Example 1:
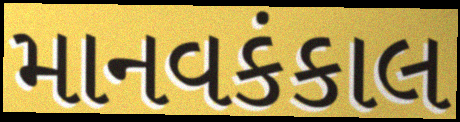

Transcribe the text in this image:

માનવકંકાલ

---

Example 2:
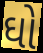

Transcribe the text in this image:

ઘો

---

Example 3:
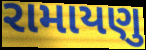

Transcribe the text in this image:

રામાયણુ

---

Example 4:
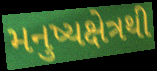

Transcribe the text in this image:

મનુષ્યક્ષેત્રથી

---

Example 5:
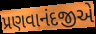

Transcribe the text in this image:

પ્રણવાનંદજીએ